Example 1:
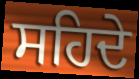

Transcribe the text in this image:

ਸਹਿਦੇ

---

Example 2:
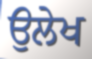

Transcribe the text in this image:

ਉਲੇਖ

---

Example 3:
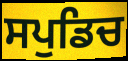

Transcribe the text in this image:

ਸਪੁਡਿਚ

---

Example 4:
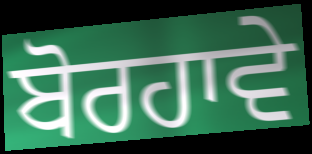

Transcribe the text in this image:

ਬੋਰਹਾਵੇ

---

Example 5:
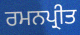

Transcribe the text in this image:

ਰਮਨਪ੍ਰੀਤ